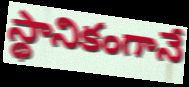
స్థానికంగానే